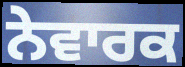
ਨੇਵਾਰਕ